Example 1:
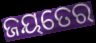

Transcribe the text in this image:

ଜୟତେର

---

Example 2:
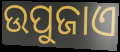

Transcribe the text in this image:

ଉପୁଜାଏ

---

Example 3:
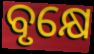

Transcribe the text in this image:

ବୃକ୍ଷେ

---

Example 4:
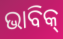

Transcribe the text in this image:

ଭାବିକ୍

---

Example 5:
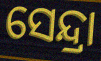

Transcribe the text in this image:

ସେନ୍ଦ୍ରା